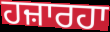
ਹਜ਼ਾਰਹਾ